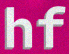
hf